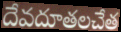
దేవదూతలచేత